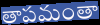
తాపమంతా